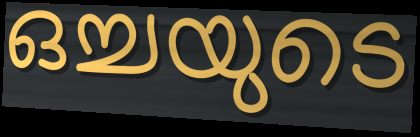
ഒച്ചയുടെ